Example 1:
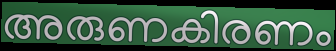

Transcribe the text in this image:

അരുണകിരണം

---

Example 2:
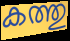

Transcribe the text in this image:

കത്തു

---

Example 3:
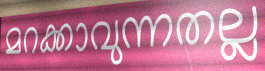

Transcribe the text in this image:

മറക്കാവുന്നതല്ല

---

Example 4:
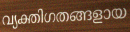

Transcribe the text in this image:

വ്യക്തിഗതങ്ങളായ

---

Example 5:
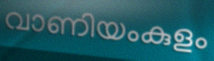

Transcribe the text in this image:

വാണിയംകുളം